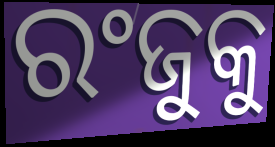
ରଂଜୁକୁ